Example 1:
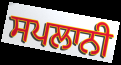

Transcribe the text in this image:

ਸਪਲਾਨੀ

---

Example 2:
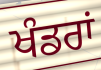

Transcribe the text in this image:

ਖੰਡਰਾਂ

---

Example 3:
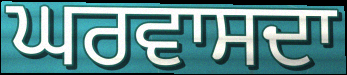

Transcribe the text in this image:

ਘਰਵਾਸਦਾ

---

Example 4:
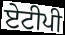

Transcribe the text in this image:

ਏਟੀਪੀ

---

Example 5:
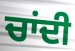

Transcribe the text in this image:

ਚਾਂਦੀ